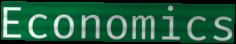
Economics